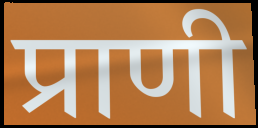
प्राणी